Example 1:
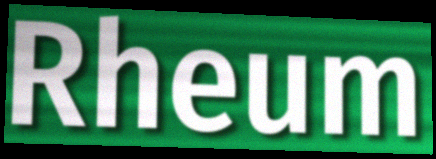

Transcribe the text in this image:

Rheum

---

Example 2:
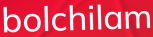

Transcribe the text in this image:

bolchilam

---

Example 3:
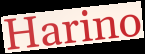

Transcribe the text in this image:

Harino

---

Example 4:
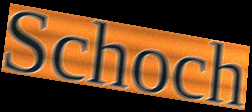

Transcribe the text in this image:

Schoch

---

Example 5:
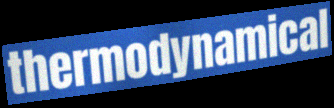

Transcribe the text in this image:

thermodynamical